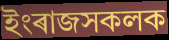
ইংৰাজসকলক